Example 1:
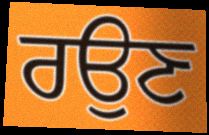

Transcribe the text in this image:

ਰਉਣ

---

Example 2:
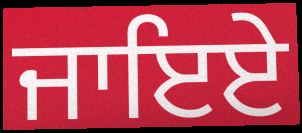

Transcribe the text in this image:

ਜਾਇਏ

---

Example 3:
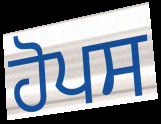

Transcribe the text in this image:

ਹੋਪਸ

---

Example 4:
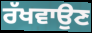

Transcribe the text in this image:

ਰੱਖਵਾਉਣ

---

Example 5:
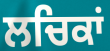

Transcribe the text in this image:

ਲਚਿਕਾਂ